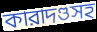
কারাদণ্ডসহ